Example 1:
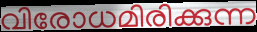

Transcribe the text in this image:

വിരോധമിരിക്കുന്ന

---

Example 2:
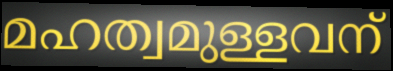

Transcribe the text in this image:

മഹത്വമുള്ളവന്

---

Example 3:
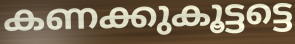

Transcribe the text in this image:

കണക്കുകൂട്ടട്ടെ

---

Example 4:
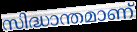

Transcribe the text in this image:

സിദ്ധാന്തമാണ്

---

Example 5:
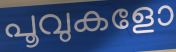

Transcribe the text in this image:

പൂവുകളോ